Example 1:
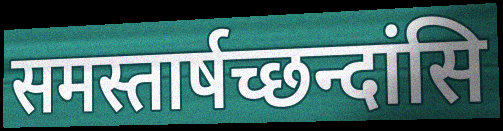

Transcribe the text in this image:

समस्तार्षच्छन्दांसि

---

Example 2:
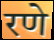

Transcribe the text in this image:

रणे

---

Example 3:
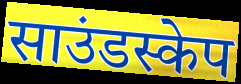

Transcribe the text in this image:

साउंडस्केप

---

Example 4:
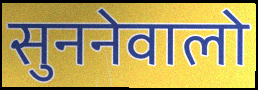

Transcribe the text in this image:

सुननेवालो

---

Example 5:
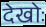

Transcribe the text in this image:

देखोः